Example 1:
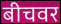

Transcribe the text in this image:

बीचवर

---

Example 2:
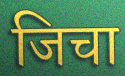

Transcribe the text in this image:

जिचा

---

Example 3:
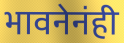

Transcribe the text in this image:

भावनेनंही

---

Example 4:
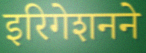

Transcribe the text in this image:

इरिगेशनने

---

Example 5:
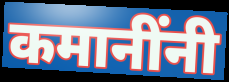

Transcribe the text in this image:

कमानींनी